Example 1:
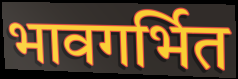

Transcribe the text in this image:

भावगर्भित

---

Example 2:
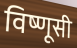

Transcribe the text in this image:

विष्णूसी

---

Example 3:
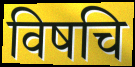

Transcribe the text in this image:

विषचि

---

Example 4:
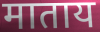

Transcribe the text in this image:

माताय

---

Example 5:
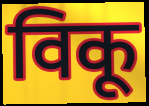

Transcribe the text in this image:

विकू